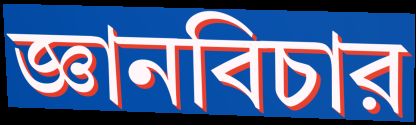
জ্ঞানবিচার